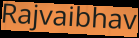
Rajvaibhav